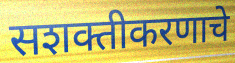
सशक्तीकरणाचे